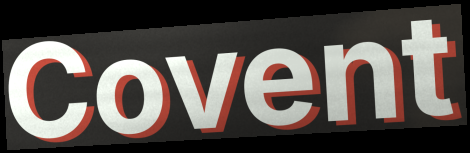
Covent